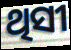
ଥିସୀ